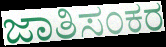
ಜಾತಿಸಂಕರ